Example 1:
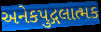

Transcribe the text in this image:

અનેકપુદ્ગલાત્મક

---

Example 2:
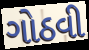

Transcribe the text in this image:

ગોઠવી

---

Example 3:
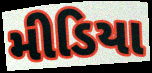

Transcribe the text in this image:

મીડિયા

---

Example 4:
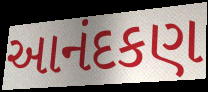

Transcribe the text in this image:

આનંદકણ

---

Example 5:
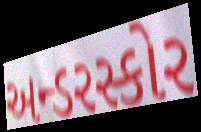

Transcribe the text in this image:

અન્ડરસ્કોર